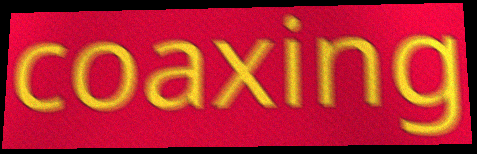
coaxing